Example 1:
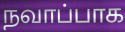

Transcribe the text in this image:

நவாப்பாக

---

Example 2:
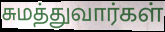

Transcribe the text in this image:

சுமத்துவார்கள்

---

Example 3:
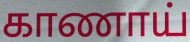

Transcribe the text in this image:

காணாய்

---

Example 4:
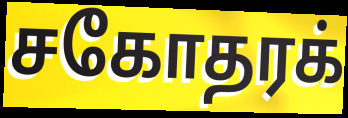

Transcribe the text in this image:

சகோதரக்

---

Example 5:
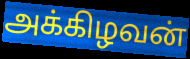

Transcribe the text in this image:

அக்கிழவன்